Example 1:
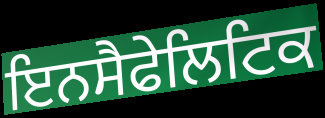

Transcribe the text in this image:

ਇਨਸੈਫੇਲਿਟਿਕ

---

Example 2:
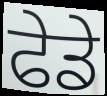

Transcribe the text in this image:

ਫੇਡੇ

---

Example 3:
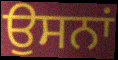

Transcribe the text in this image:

ਉਸਨਾਂ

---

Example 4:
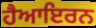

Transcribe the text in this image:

ਹੈਆਇਰਨ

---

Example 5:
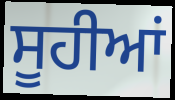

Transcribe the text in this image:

ਸੂਹੀਆਂ